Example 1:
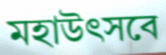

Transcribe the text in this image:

মহাউৎসবে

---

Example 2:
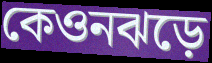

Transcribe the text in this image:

কেওনঝড়ে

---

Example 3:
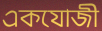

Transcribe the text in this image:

একযোজী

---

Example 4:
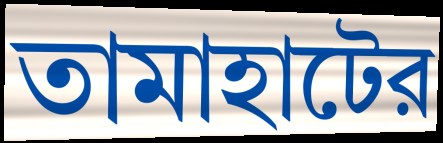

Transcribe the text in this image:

তামাহাটের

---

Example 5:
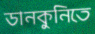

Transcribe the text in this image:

ডানকুনিতে